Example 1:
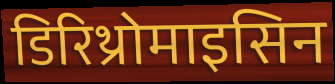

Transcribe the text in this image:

डिरिथ्रोमाइसिन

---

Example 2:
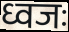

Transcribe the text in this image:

ध्वजः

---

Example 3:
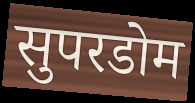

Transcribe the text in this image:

सुपरडोम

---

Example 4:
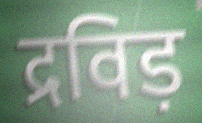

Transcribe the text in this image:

द्रविड़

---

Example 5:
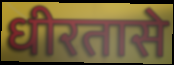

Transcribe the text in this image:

धीरतासे